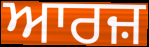
ਆਰਜ਼